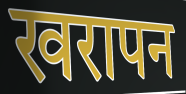
खरापन